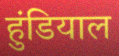
हुंडियाल